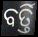
ବର୍ତ୍ତି